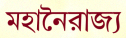
মহানৈরাজ্য